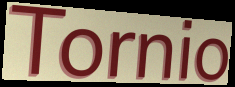
Tornio